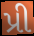
પ્રી